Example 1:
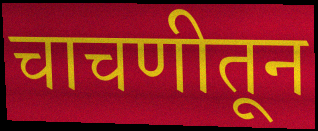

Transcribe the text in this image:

चाचणीतून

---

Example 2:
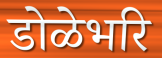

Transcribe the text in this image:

डोळेभरि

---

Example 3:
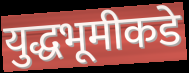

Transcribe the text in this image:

युद्धभूमीकडे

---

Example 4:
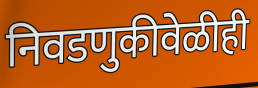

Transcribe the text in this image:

निवडणुकीवेळीही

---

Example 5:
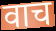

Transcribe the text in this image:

वाच